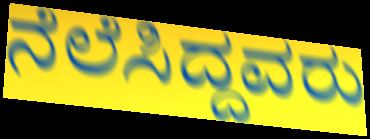
ನೆಲೆಸಿದ್ದವರು